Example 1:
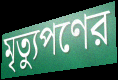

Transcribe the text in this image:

মৃত্যুপণের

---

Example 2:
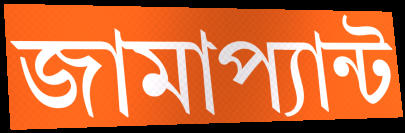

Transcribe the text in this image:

জামাপ্যান্ট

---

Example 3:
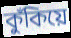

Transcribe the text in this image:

কুঁকিয়ে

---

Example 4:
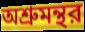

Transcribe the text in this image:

অশ্রুমন্থর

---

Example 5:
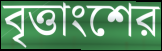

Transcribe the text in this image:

বৃত্তাংশের